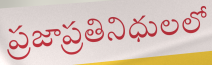
ప్రజాప్రతినిధులలో